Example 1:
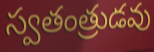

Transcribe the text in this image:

స్వతంత్రుడవు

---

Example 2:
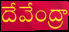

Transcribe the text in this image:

దేవేంద్రా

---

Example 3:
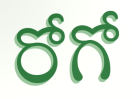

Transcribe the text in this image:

రోగో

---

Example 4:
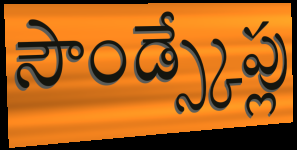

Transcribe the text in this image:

సౌండ్స్కేప్లు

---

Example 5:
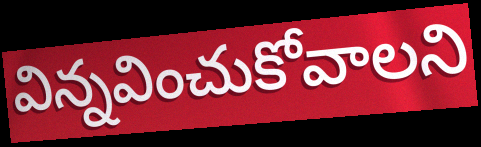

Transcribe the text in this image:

విన్నవించుకోవాలని